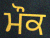
ਮੌਕ